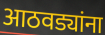
आठवड्यांना